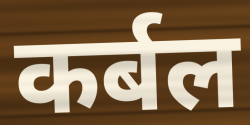
कर्बल